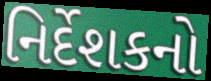
નિર્દેશકનો